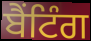
ਬੈਂਟਿੰਗ